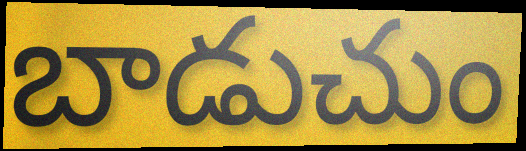
బాడుచుం